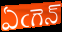
ఏఁగెన్